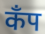
कॅंप